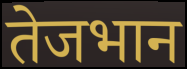
तेजभान